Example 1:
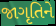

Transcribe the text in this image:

જાગૃતિને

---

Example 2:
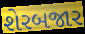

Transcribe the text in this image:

શેરબજાર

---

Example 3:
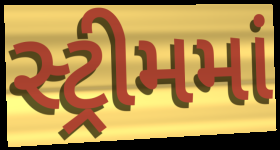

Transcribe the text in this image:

સ્ટ્રીમમાં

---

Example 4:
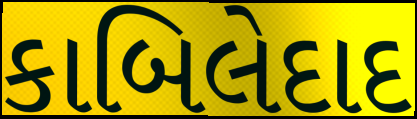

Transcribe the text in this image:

કાબિલેદાદ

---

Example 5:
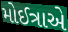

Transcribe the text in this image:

મોઈત્રાએ